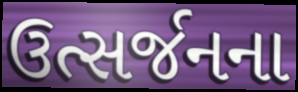
ઉત્સર્જનના